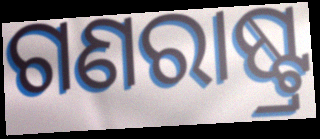
ଗଣରାଷ୍ଟ୍ର